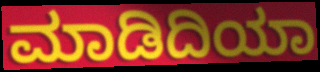
ಮಾಡಿದಿಯಾ